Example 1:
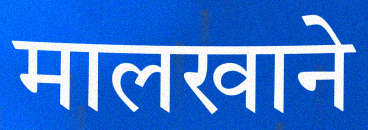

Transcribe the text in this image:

मालखाने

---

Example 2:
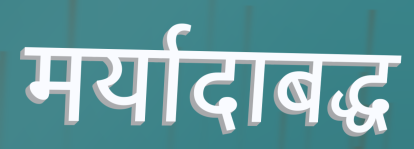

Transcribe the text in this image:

मर्यादाबद्ध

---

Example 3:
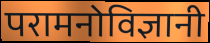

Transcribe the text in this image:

परामनोविज्ञानी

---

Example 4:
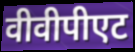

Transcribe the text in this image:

वीवीपीएट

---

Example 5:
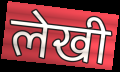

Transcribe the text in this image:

लेखी